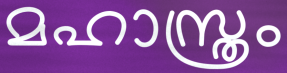
മഹാസ്ത്രം